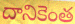
దానికెంత